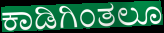
ಕಾಡಿಗಿಂತಲೂ